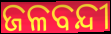
ଜଳବନ୍ଦୀ